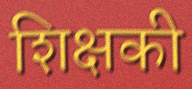
शिक्षकी